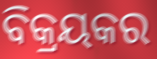
ବିକ୍ରୟକର